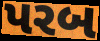
પરબ